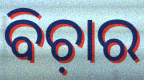
ବିଚ଼ାର